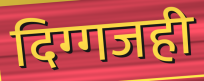
दिग्गजही